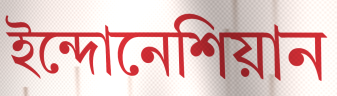
ইন্দোনেশিয়ান